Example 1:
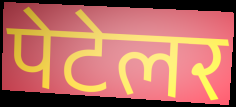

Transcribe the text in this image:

पेटेलर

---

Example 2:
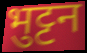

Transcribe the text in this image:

भुट्टन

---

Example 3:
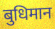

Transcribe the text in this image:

बुधिमान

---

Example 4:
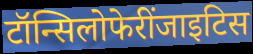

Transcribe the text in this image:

टॉन्सिलोफेरींजाइटिस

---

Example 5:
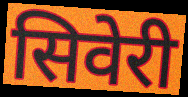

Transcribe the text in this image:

सिवेरी